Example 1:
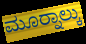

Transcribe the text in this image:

ಮೂರ‍್ನಾಲ್ಕು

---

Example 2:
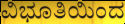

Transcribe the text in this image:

ವಿಭೂತಿಯಿಂದ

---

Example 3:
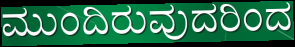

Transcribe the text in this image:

ಮುಂದಿರುವುದರಿಂದ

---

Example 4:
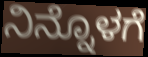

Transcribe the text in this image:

ನಿನ್ನೊಳಗೆ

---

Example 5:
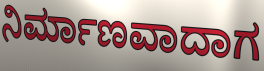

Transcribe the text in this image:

ನಿರ್ಮಾಣವಾದಾಗ